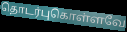
தொடர்புகொள்ளவே